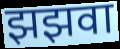
झझवा